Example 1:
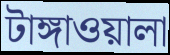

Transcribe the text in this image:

টাঙ্গাওয়ালা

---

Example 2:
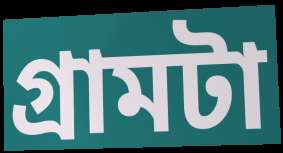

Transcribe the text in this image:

গ্রামটা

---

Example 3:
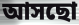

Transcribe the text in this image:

আসছো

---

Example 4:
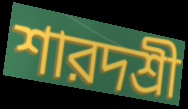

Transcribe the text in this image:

শারদশ্রী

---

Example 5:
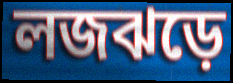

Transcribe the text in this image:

লজঝড়ে